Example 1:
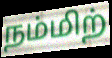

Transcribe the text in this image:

நம்மிற்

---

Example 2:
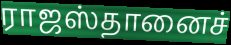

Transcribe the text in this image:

ராஜஸ்தானைச்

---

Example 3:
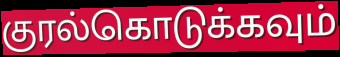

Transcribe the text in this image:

குரல்கொடுக்கவும்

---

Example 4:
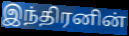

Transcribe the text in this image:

இந்திரனின்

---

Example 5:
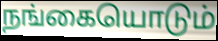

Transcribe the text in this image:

நங்கையொடும்